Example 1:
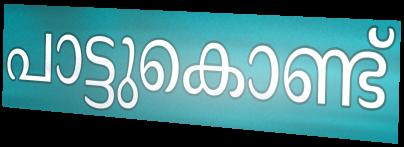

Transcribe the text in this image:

പാട്ടുകൊണ്ട്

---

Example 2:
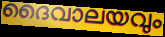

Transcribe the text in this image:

ദൈവാലയവും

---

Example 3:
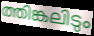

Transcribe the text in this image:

ത്തിങ്കലിടും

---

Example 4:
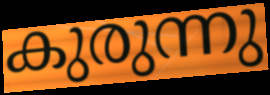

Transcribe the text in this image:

കുരുന്നു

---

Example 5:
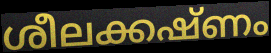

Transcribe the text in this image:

ശീലക്കഷ്ണം